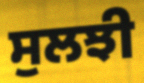
ਸੁਲਝੀ